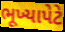
ભૂખ્યાપેટે